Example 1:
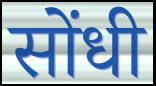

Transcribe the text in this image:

सोंधी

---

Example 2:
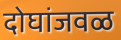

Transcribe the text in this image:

दोघांजवळ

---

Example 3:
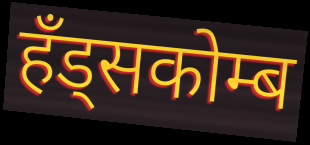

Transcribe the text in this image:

हँड्सकोम्ब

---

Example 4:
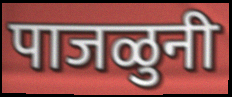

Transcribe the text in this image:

पाजळुनी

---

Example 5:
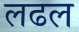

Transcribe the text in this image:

लढल